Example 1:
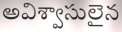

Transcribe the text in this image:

అవిశ్వాసులైన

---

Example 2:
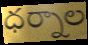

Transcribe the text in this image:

ధర్నాల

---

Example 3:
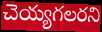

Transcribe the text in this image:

చెయ్యగలరని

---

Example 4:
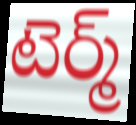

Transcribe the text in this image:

టెర్మ్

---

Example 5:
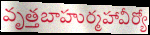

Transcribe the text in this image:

వృత్తబాహుర్మహావీర్యో